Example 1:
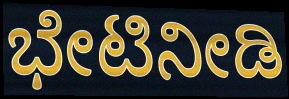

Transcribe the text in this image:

ಭೇಟಿನೀಡಿ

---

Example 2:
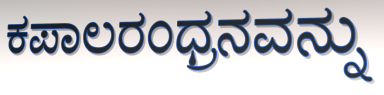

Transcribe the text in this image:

ಕಪಾಲರಂಧ್ರನವನ್ನು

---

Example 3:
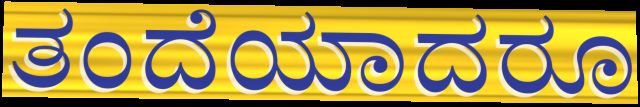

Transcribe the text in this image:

ತಂದೆಯಾದರೂ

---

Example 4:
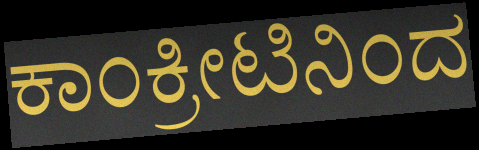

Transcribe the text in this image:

ಕಾಂಕ್ರೀಟಿನಿಂದ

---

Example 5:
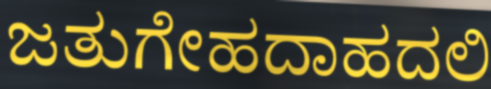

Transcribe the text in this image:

ಜತುಗೇಹದಾಹದಲಿ